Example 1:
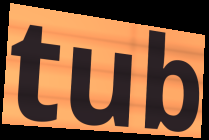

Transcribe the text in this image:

tub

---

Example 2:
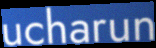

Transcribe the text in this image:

ucharun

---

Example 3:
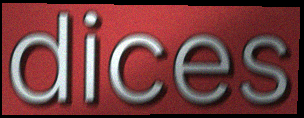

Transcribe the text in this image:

dices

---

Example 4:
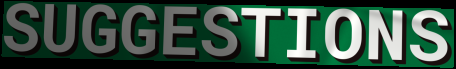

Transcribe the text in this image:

SUGGESTIONS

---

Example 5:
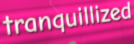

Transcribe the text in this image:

tranquillized